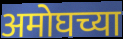
अमोघच्या